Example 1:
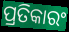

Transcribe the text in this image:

ପ୍ରତିକାରଂ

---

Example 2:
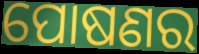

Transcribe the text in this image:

ପୋଷଣର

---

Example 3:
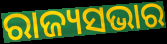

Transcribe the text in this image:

ରାଜ୍ୟସଭାର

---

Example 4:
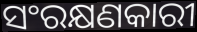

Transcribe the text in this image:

ସଂରକ୍ଷଣକାରୀ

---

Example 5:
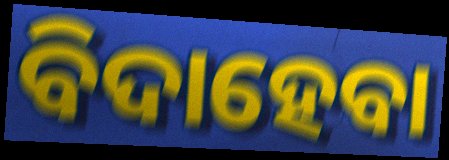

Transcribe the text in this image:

ବିଦାହେବା